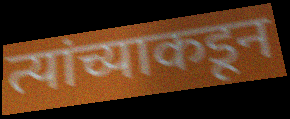
त्यांच्याकडून